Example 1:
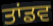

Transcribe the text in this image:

ਤਾਂਡਵ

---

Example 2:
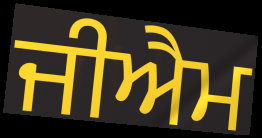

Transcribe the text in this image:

ਜੀਐਮ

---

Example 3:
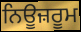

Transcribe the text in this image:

ਨਿਊਜ਼ਰੂਮ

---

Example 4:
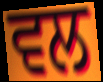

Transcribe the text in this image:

ਵਲ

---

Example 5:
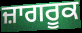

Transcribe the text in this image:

ਜ਼ਾਗਰੂਕ